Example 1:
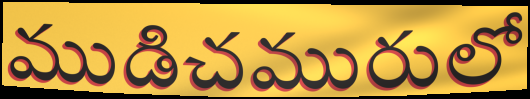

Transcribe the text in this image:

ముడిచమురులో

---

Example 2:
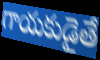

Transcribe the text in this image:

గాయకుడైతే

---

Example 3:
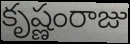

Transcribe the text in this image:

కృష్ణంరాజు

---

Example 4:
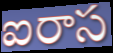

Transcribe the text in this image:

ఐరాస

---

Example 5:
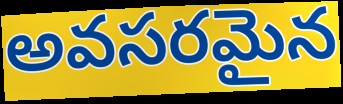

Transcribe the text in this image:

అవసరమైన